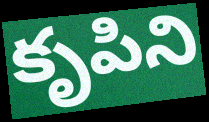
కృపిని